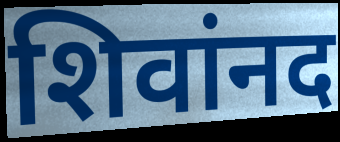
शिवांनद